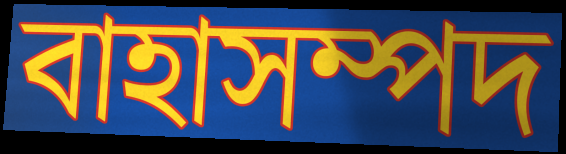
বাহাসম্পদ